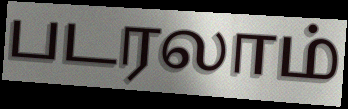
படரலாம்